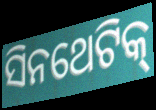
ସିନଥେଟିକ୍